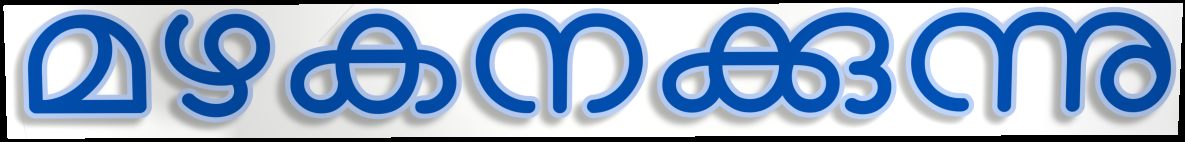
മഴകനക്കുന്നു